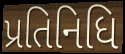
પ્રતિનિધિ